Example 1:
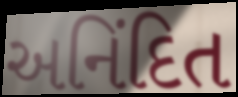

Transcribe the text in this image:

અનિંદિત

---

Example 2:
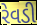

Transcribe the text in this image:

રેવડી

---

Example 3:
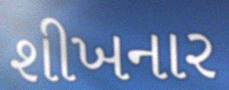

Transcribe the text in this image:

શીખનાર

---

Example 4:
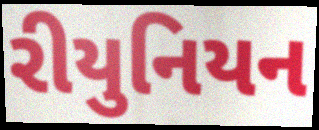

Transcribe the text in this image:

રીયુનિયન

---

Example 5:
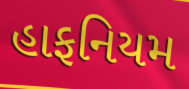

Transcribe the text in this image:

હાફનિયમ